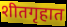
शीतगृहात